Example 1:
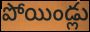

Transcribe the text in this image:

పోయిండ్లు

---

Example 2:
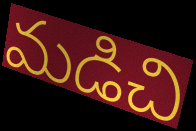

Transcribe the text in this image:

మడిచి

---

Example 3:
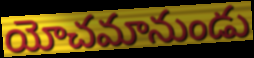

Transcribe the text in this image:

యోచమానుండు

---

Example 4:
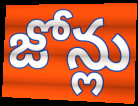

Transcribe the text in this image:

జోన్లు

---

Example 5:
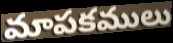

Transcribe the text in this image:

మాపకములు